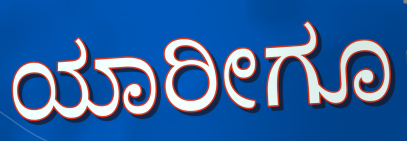
ಯಾರೀಗೂ